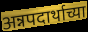
अन्नपदार्थाच्या